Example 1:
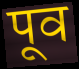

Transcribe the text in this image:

पूव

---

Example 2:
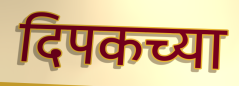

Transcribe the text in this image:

दिपकच्या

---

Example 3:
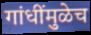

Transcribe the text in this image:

गांधींमुळेच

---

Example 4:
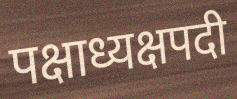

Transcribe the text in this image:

पक्षाध्यक्षपदी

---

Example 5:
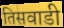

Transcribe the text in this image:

तिसवाडी